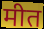
मीत